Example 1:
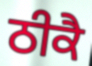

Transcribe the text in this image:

ਠੀਕੈ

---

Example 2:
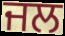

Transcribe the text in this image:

ਜਲ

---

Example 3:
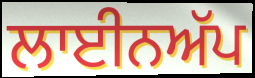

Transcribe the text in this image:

ਲਾਈਨਅੱਪ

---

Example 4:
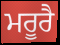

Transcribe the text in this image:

ਮਰੂਰੈ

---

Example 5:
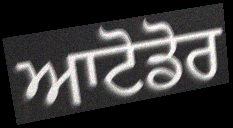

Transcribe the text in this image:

ਆਟੋਡੋਰ